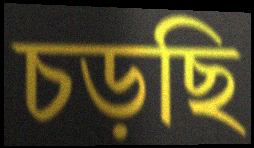
চড়ছি